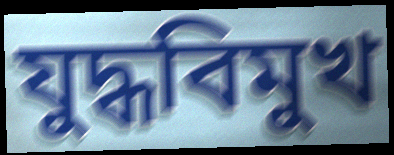
যুদ্ধবিমুখ